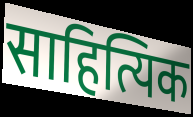
साहित्यिक